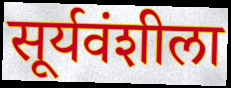
सूर्यवंशीला